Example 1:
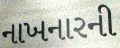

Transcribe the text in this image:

નાખનારની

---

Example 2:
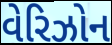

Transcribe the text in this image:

વેરિઝોન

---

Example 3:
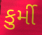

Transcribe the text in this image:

કુર્મી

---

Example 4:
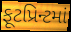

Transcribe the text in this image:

ફૂટપ્રિન્ટમાં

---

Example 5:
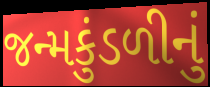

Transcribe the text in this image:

જન્મકુંડળીનું